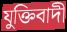
যুক্তিবাদী